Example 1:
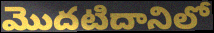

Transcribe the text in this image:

మొదటిదానిలో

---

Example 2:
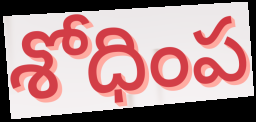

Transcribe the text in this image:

శోధింప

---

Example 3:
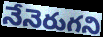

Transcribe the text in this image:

నేనెరుగని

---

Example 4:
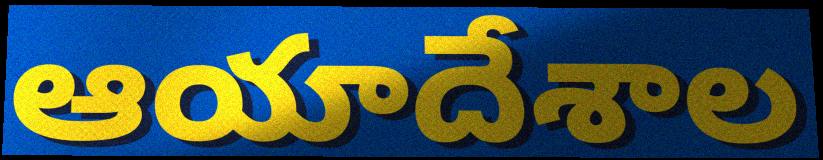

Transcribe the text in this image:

ఆయాదేశాల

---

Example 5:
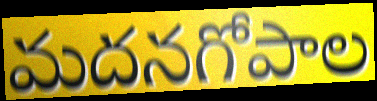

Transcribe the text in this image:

మదనగోపాల